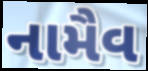
નામૈવ